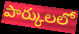
పార్కులలో